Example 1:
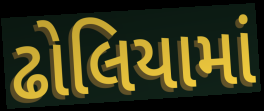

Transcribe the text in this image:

ઢોલિયામાં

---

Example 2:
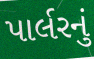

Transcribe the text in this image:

પાર્લરનું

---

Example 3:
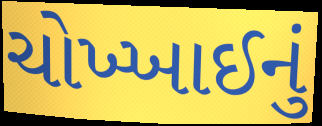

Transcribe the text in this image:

ચોખ્ખાઈનું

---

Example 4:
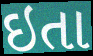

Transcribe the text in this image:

ઇતા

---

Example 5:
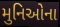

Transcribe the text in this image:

મુનિઓના